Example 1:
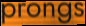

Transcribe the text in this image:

prongs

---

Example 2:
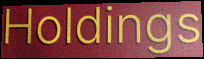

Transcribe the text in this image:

Holdings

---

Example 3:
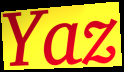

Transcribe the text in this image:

Yaz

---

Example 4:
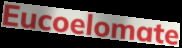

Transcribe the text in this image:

Eucoelomate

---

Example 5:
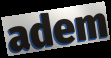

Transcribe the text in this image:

adem